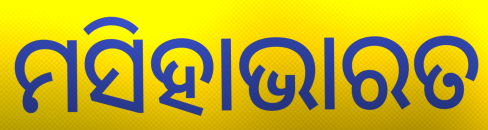
ମସିହାଭାରତ